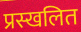
प्रस्खलित